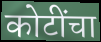
कोटींचा